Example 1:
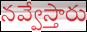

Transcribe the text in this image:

నవ్వేస్తారు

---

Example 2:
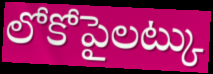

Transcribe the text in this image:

లోకోపైలట్కు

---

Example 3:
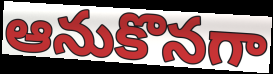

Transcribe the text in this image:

ఆనుకొనగా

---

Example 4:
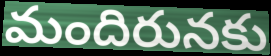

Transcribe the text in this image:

మందిరునకు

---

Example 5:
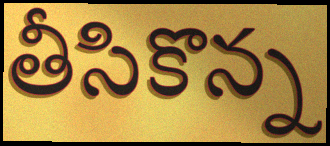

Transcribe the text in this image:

తీసికొన్న